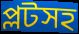
প্লটসহ